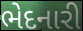
ભેદનારી